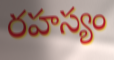
రహస్యం